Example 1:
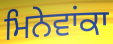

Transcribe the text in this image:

ਮਿਨੇਵਾਂਕਾ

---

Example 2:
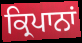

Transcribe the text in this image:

ਕ੍ਰਿਪਾਨਾਂ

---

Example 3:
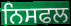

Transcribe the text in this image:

ਨਿਸਫਲ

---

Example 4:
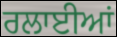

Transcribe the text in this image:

ਰਲਾਈਆਂ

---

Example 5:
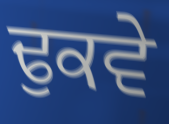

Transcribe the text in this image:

ਢੁਕਵੇ